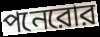
পনেরোর